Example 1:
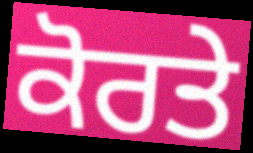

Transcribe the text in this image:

ਕੋਰਤੇ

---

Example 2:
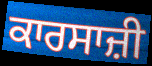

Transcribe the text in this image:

ਕਾਰਸਾਜ਼ੀ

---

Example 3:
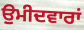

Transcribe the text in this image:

ਉੁਮੀਦਵਾਰਾਂ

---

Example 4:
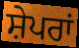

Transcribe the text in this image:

ਸ਼ੇਪਰਾਂ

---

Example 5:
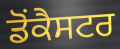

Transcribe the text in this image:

ਡੋਂਕੈਸਟਰ